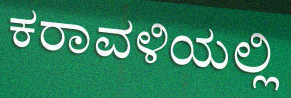
ಕರಾವಳಿಯಲ್ಲಿ